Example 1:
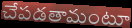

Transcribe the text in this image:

చేపడతామంటూ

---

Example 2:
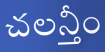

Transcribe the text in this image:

చలన్తీం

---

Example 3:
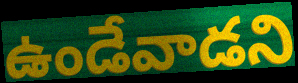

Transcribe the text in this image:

ఉండేవాడని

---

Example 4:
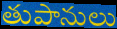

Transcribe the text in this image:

తుపానులు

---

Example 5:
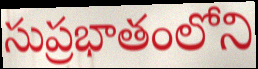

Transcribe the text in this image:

సుప్రభాతంలోని